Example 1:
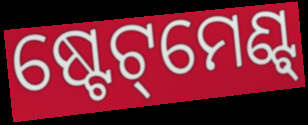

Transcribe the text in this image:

ଷ୍ଟେଟ୍‌ମେଣ୍ଟ୍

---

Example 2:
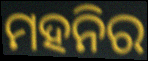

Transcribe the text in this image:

ମହନିର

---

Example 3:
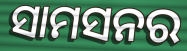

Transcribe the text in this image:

ସାମସନର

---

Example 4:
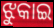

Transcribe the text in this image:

ଝୁକାଇ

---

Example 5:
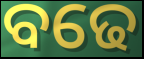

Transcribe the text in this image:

ବଢେ